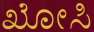
ಖೋಸಿ